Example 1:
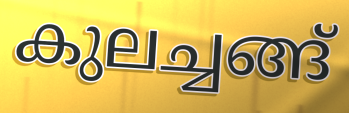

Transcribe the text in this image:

കുലച്ചങ്ങ്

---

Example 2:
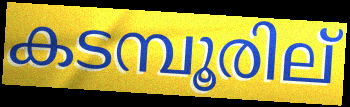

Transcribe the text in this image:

കടമ്പൂരില്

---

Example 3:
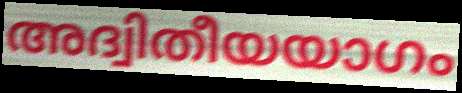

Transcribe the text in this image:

അദ്വിതീയയാഗം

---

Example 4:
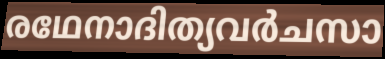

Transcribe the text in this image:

രഥേനാദിത്യവർചസാ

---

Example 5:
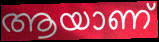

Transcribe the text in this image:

ആയാണ്